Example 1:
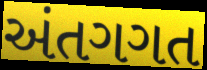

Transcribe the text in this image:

અંતગગત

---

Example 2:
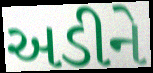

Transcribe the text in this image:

અડીને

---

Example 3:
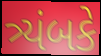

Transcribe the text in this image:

ત્ર્યંબકે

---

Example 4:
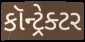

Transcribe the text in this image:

કૉન્ટ્રેક્ટર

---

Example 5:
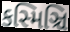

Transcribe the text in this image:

કસ્મિઞ્ચિ